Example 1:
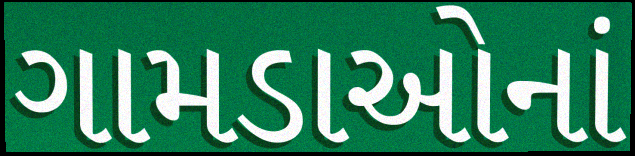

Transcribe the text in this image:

ગામડાઓનાં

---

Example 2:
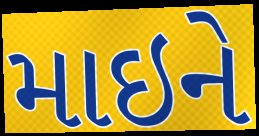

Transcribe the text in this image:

માઇને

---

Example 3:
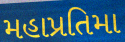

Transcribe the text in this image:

મહાપ્રતિમા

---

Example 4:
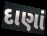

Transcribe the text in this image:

દાણાં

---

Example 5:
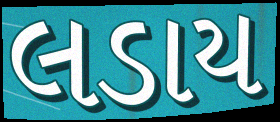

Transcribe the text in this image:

લડાય